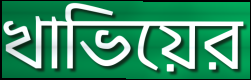
খাভিয়ের